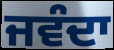
ਜਵੰਦਾ